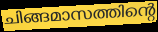
ചിങ്ങമാസത്തിന്റെ